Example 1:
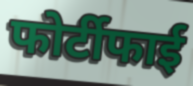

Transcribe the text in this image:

फोर्टीफाई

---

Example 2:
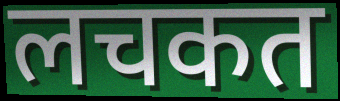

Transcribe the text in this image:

लचकत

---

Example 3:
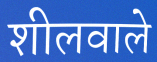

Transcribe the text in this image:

शीलवाले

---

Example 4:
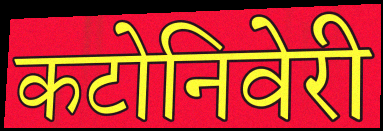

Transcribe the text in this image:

कटोनिवेरी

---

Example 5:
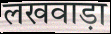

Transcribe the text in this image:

लखवाड़ा